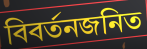
বিবর্তনজনিত